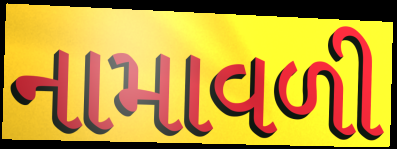
નામાવળી